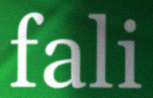
fali